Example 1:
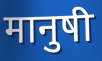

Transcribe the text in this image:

मानुषी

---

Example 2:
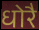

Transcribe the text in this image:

धोरै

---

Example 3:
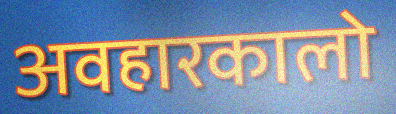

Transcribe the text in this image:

अवहारकालो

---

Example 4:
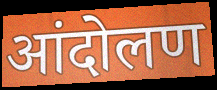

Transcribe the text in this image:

आंदोलण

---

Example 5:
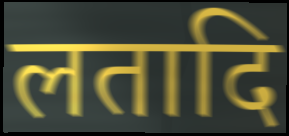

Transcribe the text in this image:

लतादि